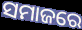
ସମାଜରେ